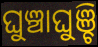
ଘୁଞ୍ଚାଘୁଞ୍ଚି